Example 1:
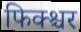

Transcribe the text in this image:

फिक्श्चर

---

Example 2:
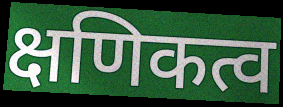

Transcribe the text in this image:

क्षणिकत्व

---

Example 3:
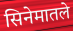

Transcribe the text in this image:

सिनेमातले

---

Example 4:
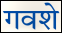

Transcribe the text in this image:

गवशे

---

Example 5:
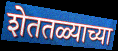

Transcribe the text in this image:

शेततळ्याच्या